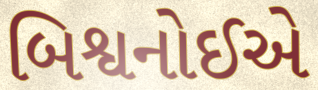
બિશ્વનોઈએ